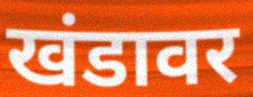
खंडावर